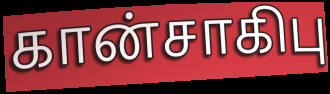
கான்சாகிபு